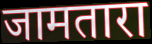
जामतारा